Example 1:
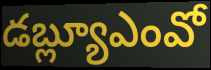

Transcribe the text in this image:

డబ్ల్యూఎంవో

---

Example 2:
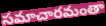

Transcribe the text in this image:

సమాచారమంతా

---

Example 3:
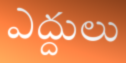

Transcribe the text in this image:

ఎద్దులు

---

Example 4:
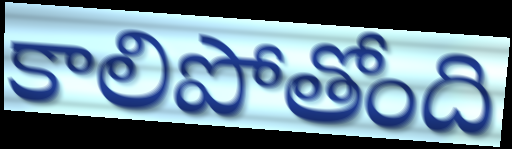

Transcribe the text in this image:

కాలిపోతోంది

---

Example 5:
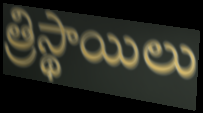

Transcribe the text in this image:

త్రిస్థాయిలు